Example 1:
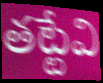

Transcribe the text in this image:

తట్టేవి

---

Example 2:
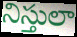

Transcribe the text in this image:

నిస్తులా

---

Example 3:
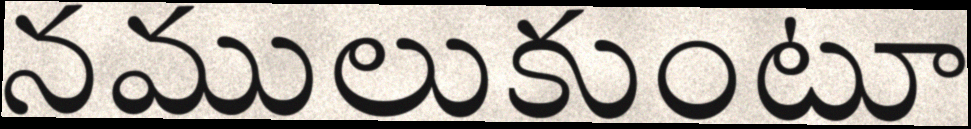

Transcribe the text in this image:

నములుకుంటూ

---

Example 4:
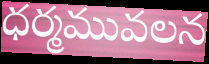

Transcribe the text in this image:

ధర్మమువలన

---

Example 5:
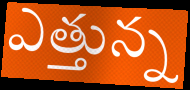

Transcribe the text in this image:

ఎత్తున్న